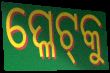
ପ୍ଳେଟ୍‌କୁ